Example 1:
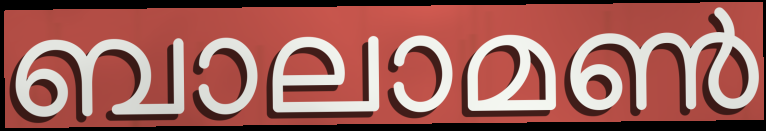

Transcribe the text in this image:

ബാലാമൺ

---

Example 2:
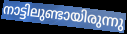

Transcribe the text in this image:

നാട്ടിലുണ്ടായിരുന്നു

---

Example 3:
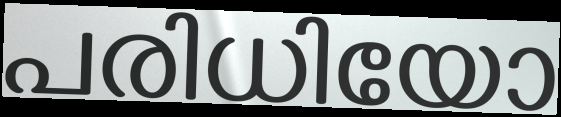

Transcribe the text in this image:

പരിധിയോ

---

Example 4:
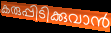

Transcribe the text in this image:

കരുപ്പിടിക്കുവാൻ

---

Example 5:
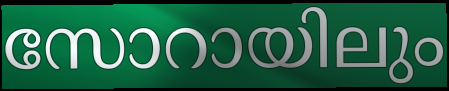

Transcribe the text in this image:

സോറായിലും